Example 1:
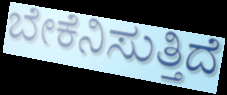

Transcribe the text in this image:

ಬೇಕೆನಿಸುತ್ತಿದೆ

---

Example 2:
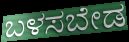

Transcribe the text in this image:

ಬಳಸಬೇಡ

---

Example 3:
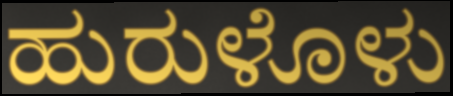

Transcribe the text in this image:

ಹುರುಳೊಳು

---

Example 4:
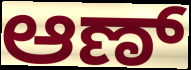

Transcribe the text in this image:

ಆಣ್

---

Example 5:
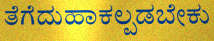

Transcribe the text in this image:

ತೆಗೆದುಹಾಕಲ್ಪಡಬೇಕು